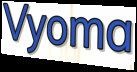
Vyoma